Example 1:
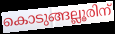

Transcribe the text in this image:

കൊടുങ്ങല്ലൂരിന്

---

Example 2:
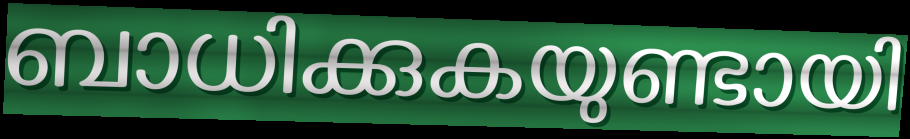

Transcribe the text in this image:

ബാധിക്കുകയുണ്ടായി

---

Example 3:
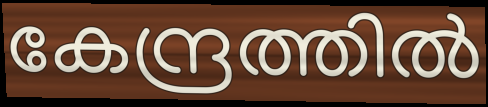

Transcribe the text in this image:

കേന്ദ്രത്തിൽ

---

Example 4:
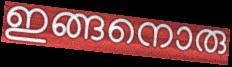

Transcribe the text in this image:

ഇങ്ങനൊരു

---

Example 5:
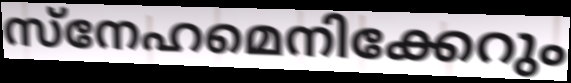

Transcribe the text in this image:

സ്നേഹമെനിക്കേറും